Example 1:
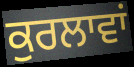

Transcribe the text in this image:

ਕੁਰਲਾਵਾਂ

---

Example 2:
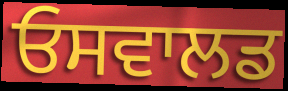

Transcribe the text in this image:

ਓਸਵਾਲਡ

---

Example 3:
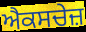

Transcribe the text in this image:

ਐਕਸਚੇਜ਼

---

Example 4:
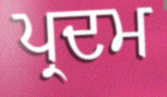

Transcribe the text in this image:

ਪ੍ਰਦਮ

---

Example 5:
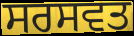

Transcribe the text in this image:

ਸਰਸਵਤ